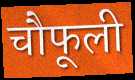
चौफूली